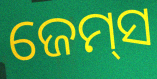
ଜେମ୍‌ସ